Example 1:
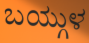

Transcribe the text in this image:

ಬಯ್ಗುಳ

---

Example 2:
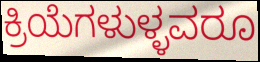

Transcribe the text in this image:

ಕ್ರಿಯೆಗಳುಳ್ಳವರೂ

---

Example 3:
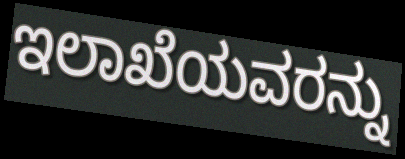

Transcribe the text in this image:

ಇಲಾಖೆಯವರನ್ನು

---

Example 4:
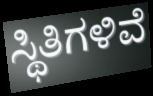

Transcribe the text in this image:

ಸ್ಥಿತಿಗಳಿವೆ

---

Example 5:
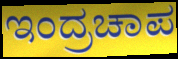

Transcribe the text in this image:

ಇಂದ್ರಚಾಪ